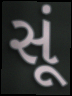
સૂં